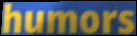
humors